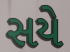
સયે